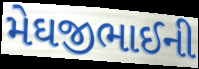
મેઘજીભાઈની